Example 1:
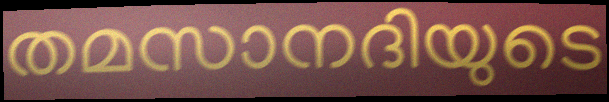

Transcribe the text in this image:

തമസാനദിയുടെ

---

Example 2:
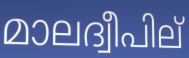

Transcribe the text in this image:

മാലദ്വീപില്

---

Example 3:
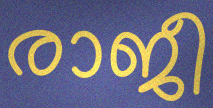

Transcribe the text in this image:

രാജീ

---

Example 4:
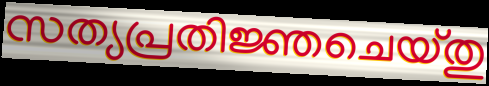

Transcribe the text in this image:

സത്യപ്രതിജ്ഞചെയ്തു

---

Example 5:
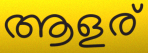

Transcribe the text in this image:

ആളര്